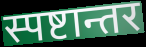
स्पष्टान्तर